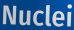
Nuclei